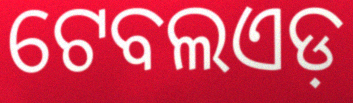
ଟେବଲଏଡ଼